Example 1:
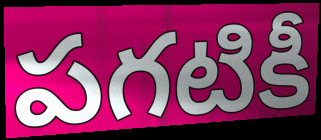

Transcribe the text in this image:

పగటికీ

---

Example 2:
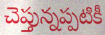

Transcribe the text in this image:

చెప్తున్నప్పటికీ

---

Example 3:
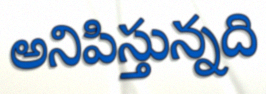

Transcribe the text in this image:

అనిపిస్తున్నది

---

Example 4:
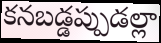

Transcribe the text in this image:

కనబడ్డప్పుడల్లా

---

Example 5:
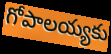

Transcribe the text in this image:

గోపాలయ్యకు